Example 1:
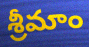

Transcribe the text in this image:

శ్రీమాం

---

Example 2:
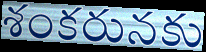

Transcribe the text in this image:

శంకరునకు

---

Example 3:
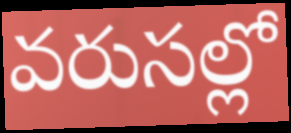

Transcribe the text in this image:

వరుసల్లో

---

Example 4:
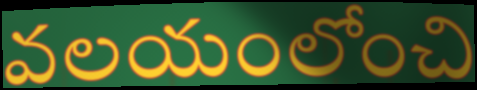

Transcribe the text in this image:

వలయంలోంచి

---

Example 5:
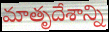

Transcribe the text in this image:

మాతృదేశాన్ని